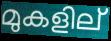
മുകളില്